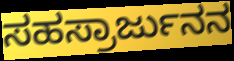
ಸಹಸ್ರಾರ್ಜುನನ